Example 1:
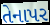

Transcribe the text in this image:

તેનાપર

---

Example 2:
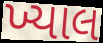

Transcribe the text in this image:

ખ્યાલ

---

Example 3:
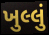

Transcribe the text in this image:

ખુલ્લું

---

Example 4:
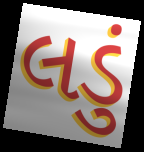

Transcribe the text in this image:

લડું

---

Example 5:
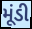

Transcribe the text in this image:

મૂંડી